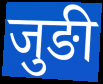
जुङी